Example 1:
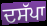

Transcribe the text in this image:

ਦਸੱਪਾ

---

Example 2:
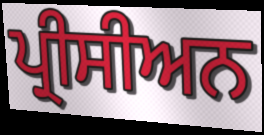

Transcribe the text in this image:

ਪ੍ਰੀਸੀਅਨ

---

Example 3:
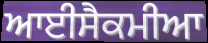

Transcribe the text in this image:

ਆਈਸੈਕਮੀਆ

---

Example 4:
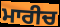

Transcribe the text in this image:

ਮਾਰੀਚ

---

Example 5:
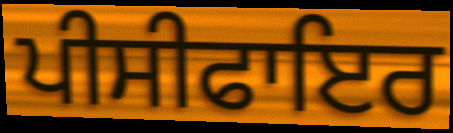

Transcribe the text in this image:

ਪੀਸੀਫਾਇਰ